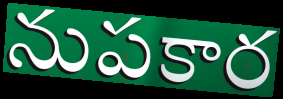
నుపకార